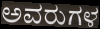
ಅವರುಗಳ